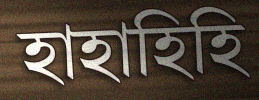
হাহাহিহি